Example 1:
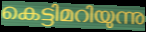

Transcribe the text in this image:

കെട്ടിമറിയുന്നു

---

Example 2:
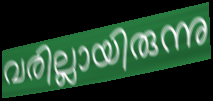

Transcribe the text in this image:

വരില്ലായിരുന്നു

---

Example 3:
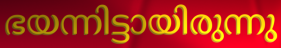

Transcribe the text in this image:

ഭയന്നിട്ടായിരുന്നു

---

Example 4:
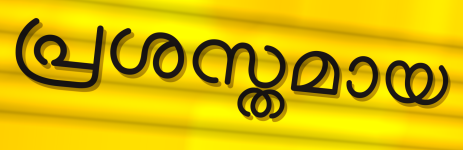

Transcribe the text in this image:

പ്രശസ്തമായ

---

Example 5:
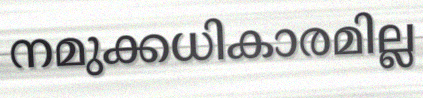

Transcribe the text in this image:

നമുക്കധികാരമില്ല